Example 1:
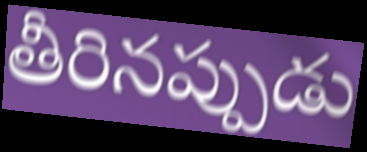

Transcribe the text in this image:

తీరినప్పుడు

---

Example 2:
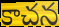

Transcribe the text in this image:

కాచన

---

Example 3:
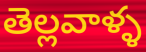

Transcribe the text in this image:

తెల్లవాళ్ళ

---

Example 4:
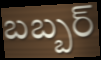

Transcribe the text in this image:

బబ్బర్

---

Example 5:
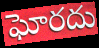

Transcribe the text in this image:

ఘోరదు